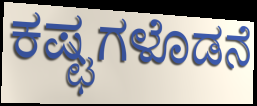
ಕಷ್ಟಗಳೊಡನೆ